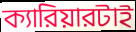
ক্যারিয়ারটাই